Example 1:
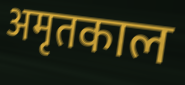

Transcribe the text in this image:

अमृतकाल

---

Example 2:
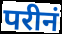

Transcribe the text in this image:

परीनं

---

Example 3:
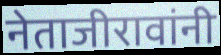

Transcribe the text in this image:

नेताजीरावांनी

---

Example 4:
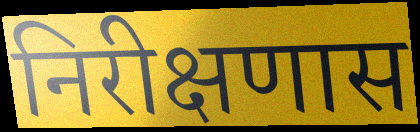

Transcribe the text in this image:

निरीक्षणास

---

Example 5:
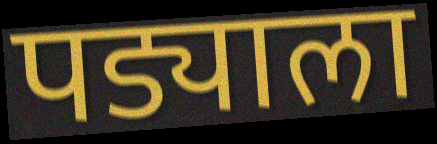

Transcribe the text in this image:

पड्याला